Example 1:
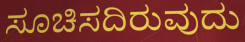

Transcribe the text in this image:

ಸೂಚಿಸದಿರುವುದು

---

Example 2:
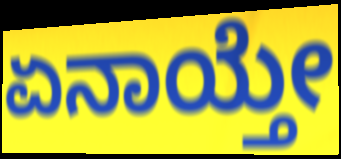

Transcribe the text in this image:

ಏನಾಯ್ತೇ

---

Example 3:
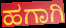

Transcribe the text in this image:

ಹಗಾಗಿ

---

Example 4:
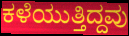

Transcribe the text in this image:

ಕಳೆಯುತ್ತಿದ್ದವು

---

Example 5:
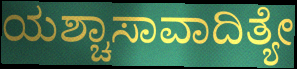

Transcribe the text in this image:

ಯಶ್ಚಾಸಾವಾದಿತ್ಯೇ